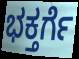
ಭಕ್ತರ್ಗೆ